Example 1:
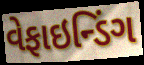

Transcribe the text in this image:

વેફાઇન્ડિંગ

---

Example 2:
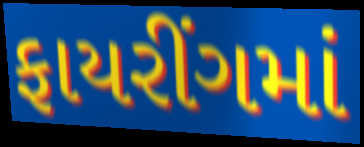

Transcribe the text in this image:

ફાયરીંગમાં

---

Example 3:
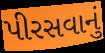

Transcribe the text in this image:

પીરસવાનું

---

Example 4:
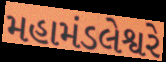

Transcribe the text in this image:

મહામંડલેશ્વરે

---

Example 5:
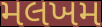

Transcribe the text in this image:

મલખમ